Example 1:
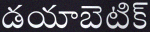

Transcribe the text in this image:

డయాబెటిక్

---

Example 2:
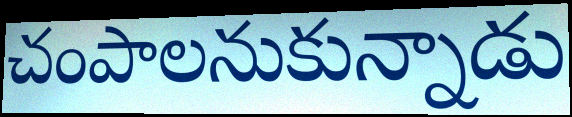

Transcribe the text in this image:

చంపాలనుకున్నాడు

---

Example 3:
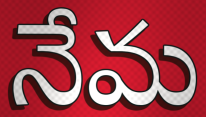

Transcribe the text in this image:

నేమ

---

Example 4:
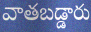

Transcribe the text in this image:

వాతబడ్డారు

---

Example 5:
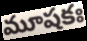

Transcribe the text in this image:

మూషకః